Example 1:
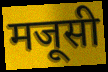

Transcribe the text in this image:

मजूसी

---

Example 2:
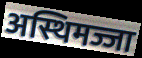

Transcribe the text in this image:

अस्थिमज्जा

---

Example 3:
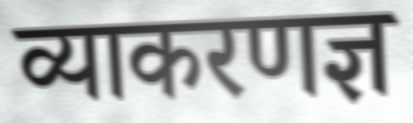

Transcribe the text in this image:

व्याकरणज्ञ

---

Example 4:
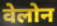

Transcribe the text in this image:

वेलोन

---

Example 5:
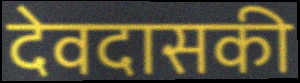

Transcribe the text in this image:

देवदासकी